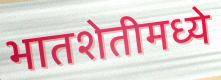
भातशेतीमध्ये